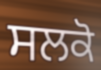
ਸਲਕੋ